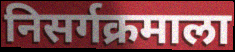
निसर्गक्रमाला